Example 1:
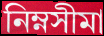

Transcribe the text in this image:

নিম্নসীমা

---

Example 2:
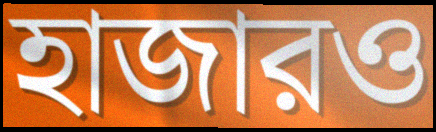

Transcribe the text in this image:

হাজারও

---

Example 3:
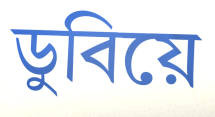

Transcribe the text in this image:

ডুবিয়ে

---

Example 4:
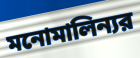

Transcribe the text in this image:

মনোমালিন্যর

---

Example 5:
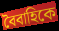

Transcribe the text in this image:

বৈবাহিকে